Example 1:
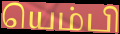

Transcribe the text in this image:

யெம்பி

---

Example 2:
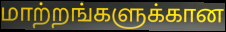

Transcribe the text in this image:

மாற்றங்களுக்கான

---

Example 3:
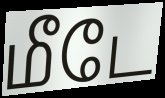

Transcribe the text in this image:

மீடே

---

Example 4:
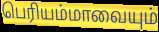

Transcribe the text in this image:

பெரியம்மாவையும்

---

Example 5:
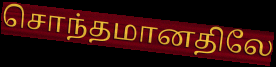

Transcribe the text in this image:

சொந்தமானதிலே